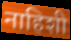
नाहिशी